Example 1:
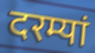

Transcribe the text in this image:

दरम्यां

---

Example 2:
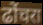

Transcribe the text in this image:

ढोंचरा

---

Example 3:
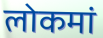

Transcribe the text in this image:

लोकमां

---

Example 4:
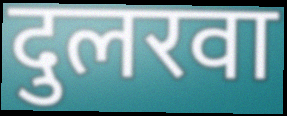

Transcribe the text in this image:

दुलरवा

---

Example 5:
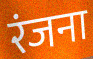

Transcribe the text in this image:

रंजना